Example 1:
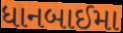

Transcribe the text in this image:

ધાનબાઈમા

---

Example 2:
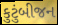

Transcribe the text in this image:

કુટુંબીજન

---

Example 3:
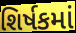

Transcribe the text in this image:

શિર્ષકમાં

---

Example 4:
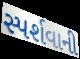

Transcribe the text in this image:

સ્પર્શવાની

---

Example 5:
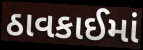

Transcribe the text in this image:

ઠાવકાઈમાં